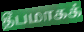
தீபமாகக்